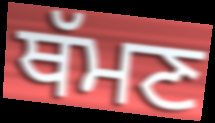
ਥੱਮਣ